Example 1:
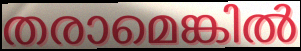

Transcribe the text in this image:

തരാമെങ്കിൽ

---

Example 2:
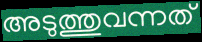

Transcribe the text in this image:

അടുത്തുവന്നത്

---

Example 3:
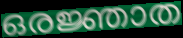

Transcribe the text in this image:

ഒരജ്ഞാത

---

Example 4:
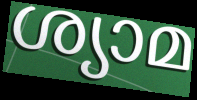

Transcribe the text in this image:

ശ്യാമ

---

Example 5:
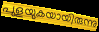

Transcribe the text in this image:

പുളയുകയായിരുന്നു